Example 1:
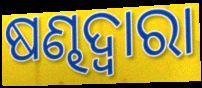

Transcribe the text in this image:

ଷଣ୍ଢଦ୍ୱାରା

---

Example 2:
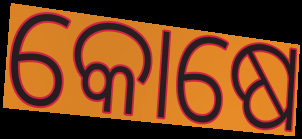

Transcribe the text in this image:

କୋଷେ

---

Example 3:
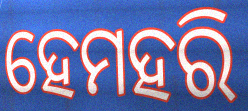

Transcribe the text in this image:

ହେମହରି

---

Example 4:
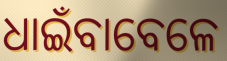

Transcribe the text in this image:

ଧାଇଁବାବେଳେ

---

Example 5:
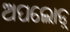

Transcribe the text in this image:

ଅପଲୋଡ଼୍